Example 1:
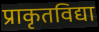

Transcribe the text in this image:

प्राकृतविद्या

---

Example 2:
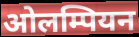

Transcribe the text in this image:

ओलम्पियन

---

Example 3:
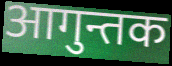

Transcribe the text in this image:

आगुन्तक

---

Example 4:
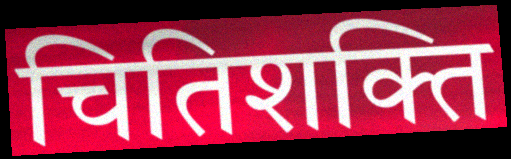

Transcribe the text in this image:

चितिशक्ति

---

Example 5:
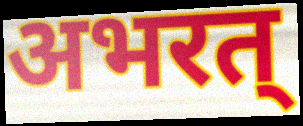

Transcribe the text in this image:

अभरत्